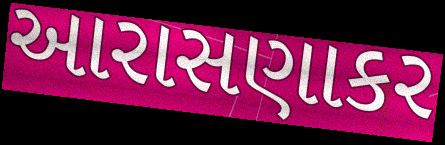
આરાસણાકર